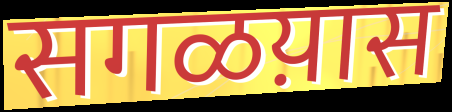
सगळय़ास